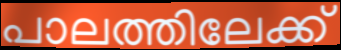
പാലത്തിലേക്ക്